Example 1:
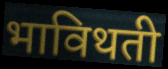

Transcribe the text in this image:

भाविथती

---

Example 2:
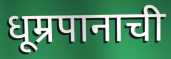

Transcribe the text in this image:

धूम्रपानाची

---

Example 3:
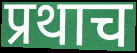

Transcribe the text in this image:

प्रथाच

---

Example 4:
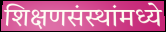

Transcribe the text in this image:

शिक्षणसंस्थांमध्ये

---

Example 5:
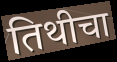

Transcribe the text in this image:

तिथीचा